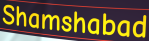
Shamshabad